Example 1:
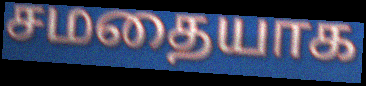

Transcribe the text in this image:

சமதையாக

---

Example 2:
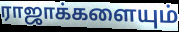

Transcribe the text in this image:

ராஜாக்களையும்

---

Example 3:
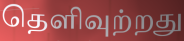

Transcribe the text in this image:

தெளிவுற்றது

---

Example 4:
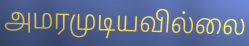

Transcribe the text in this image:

அமரமுடியவில்லை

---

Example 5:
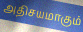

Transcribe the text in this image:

அதிசயமாகும்